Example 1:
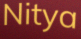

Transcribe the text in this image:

Nitya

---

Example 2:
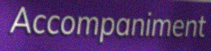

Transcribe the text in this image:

Accompaniment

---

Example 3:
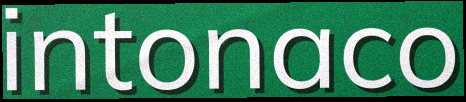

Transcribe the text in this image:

intonaco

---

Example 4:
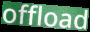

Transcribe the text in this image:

offload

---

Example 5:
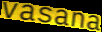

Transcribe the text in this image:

vasana